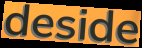
deside